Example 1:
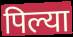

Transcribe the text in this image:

पिल्या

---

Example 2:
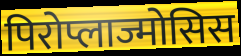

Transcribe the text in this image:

पिरोप्लाज्मोसिस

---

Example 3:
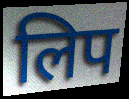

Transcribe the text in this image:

लिप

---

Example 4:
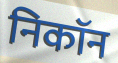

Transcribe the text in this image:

निकॉन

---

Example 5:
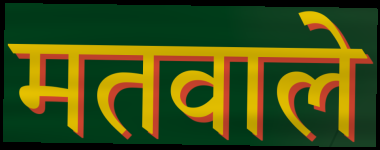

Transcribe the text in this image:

मतवाले